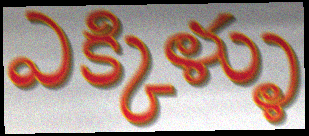
ఎక్కిళ్ళు